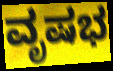
ವೃಷಭ